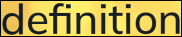
definition